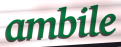
ambile